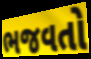
ભજવતો